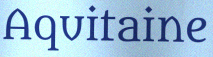
Aquitaine